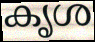
കൃശ